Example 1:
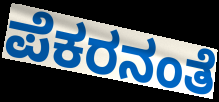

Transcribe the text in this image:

ಪೆಕರನಂತೆ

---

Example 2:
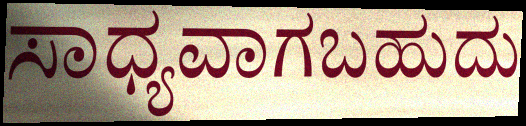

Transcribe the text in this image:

ಸಾಧ್ಯವಾಗಬಹುದು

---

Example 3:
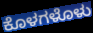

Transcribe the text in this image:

ಕೊಳಗಳೊಳು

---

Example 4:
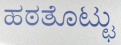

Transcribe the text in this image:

ಹಠತೊಟ್ಟು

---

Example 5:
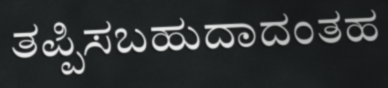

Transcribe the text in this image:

ತಪ್ಪಿಸಬಹುದಾದಂತಹ